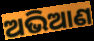
ଅଭିଆଣ